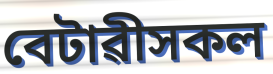
বেটাৱীসকল